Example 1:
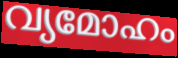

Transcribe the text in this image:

വ്യമോഹം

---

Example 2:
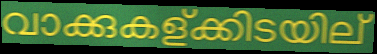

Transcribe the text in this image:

വാക്കുകള്ക്കിടയില്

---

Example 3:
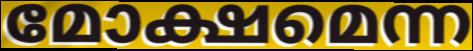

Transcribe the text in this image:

മോക്ഷമെന്ന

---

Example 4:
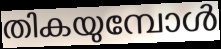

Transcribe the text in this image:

തികയുമ്പോൾ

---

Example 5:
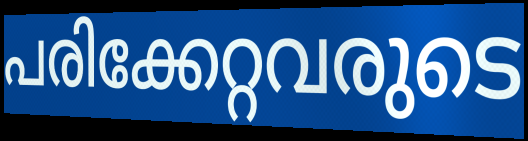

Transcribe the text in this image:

പരിക്കേറ്റവരുടെ